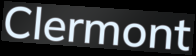
Clermont